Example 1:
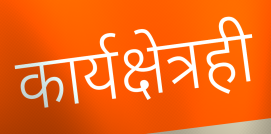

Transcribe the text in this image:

कार्यक्षेत्रही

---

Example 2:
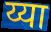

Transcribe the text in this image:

य्या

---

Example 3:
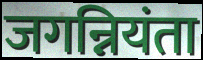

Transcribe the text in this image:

जगन्नियंता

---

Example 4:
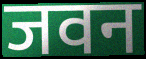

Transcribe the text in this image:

जवन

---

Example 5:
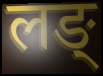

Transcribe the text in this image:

लङ्